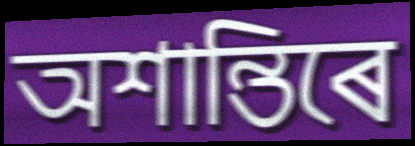
অশান্তিৰে